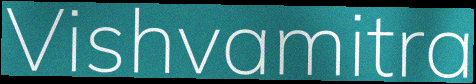
Vishvamitra